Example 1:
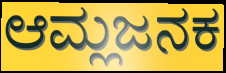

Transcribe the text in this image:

ಆಮ್ಲಜನಕ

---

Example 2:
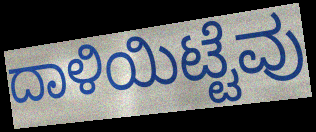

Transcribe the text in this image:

ದಾಳಿಯಿಟ್ಟೆವು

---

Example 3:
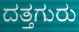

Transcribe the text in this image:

ದತ್ತಗುರು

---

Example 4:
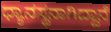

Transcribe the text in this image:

ಧ್ಯಾನಸ್ಥನಾಗಿದ್ದಾನೆ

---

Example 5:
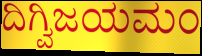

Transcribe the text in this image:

ದಿಗ್ವಿಜಯಮಂ